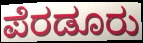
ಪೆರಡೂರು